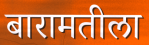
बारामतीला